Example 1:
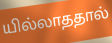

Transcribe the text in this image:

யில்லாததால்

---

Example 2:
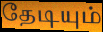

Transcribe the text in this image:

தேடியும்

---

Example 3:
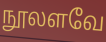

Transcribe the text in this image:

நூலளவே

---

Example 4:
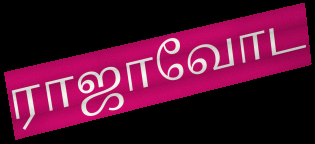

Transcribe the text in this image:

ராஜாவோட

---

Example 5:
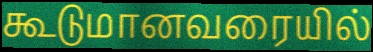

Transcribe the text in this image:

கூடுமானவரையில்